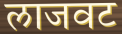
लाजवट